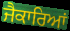
ਜੈਕਾਰਿਆਂ